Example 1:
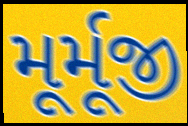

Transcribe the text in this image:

મૂર્મૂજી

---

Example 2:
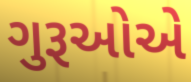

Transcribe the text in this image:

ગુરૂઓએ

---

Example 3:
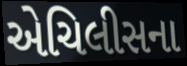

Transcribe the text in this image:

એચિલીસના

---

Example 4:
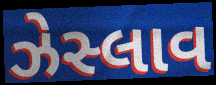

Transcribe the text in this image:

ઝેસ્લાવ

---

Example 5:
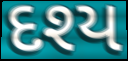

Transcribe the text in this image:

દશ્ય